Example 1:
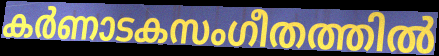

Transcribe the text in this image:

കർണാടകസംഗീതത്തിൽ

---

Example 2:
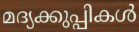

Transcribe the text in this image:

മദ്യക്കുപ്പികൾ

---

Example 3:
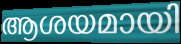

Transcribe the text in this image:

ആശയമായി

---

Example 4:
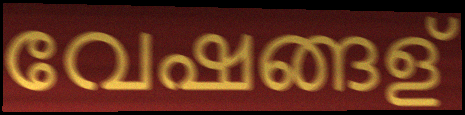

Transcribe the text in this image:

വേഷങ്ങള്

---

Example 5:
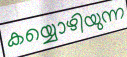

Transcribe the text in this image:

കയ്യൊഴിയുന്ന